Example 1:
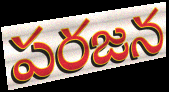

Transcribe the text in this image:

పరజన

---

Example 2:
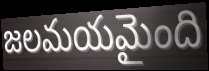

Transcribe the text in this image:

జలమయమైంది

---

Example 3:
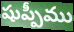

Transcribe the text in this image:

షుప్పీము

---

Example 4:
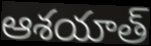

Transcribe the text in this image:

ఆశయాత్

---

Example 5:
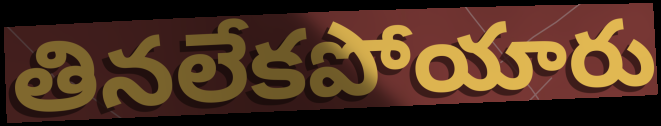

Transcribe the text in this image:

తినలేకపోయారు